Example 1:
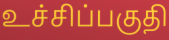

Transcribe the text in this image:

உச்சிப்பகுதி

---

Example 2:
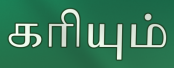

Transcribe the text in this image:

கரியும்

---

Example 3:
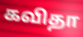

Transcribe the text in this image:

கவிதா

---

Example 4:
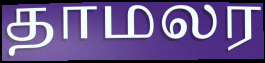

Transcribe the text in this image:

தாமலர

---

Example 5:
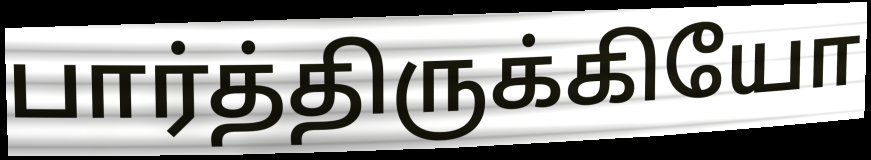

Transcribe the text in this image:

பார்த்திருக்கியோ